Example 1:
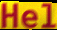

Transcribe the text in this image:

Hel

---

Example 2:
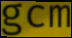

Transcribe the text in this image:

gcm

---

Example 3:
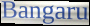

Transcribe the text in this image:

Bangaru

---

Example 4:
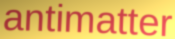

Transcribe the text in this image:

antimatter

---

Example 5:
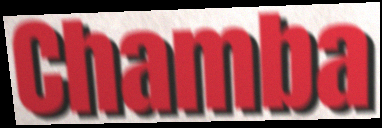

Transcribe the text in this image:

Chamba